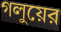
গলুয়ের